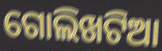
ଗୋଲିଖଟିଆ